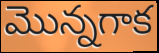
మొన్నగాక